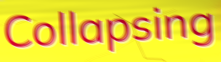
Collapsing